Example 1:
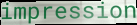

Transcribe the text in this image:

impression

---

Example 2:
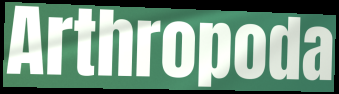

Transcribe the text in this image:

Arthropoda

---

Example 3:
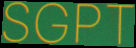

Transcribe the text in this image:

SGPT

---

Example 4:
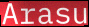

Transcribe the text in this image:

Arasu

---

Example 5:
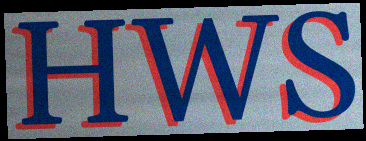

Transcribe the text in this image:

HWS